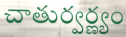
చాతుర్వర్ణ్యం